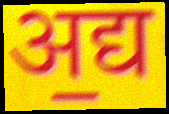
अ॒द्य